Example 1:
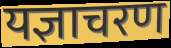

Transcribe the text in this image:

यज्ञाचरण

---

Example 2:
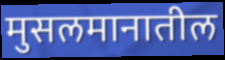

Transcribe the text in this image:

मुसलमानातील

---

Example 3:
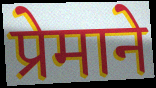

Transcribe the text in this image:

प्रेमाने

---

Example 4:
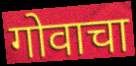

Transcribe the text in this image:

गोवाचा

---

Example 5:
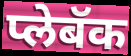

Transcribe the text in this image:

प्लेबॅक